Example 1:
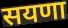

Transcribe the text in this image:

सयणा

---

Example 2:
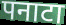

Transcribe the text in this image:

पनाटा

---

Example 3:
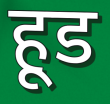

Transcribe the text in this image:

हूड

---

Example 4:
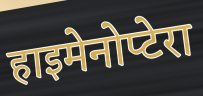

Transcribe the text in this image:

हाइमेनोप्टेरा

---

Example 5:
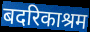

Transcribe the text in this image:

बदरिकाश्रम